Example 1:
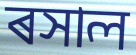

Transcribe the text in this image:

ৰসাল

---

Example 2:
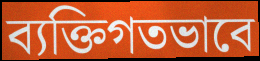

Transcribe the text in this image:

ব্যক্তিগতভাবে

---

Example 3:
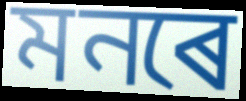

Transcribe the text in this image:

মনৰে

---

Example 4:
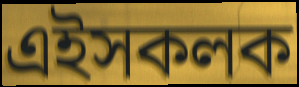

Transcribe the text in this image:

এইসকলক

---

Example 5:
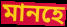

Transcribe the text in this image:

মানহে